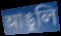
আঙুলি